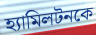
হ্যামিলটনকে